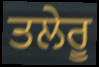
ਤਲੇਰੂ